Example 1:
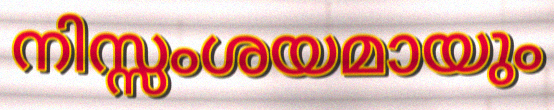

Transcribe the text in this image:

നിസ്സംശയമായും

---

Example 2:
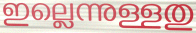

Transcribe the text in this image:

ഇല്ലെന്നുള്ളതു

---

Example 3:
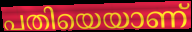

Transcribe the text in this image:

പതിയെയാണ്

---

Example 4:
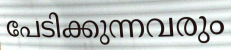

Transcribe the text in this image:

പേടിക്കുന്നവരും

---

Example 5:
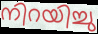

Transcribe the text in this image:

നിറയിച്ചു